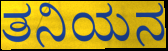
ತನಿಯನ